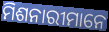
ମିଶନାରୀମାନେ